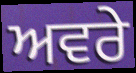
ਅਵਰੇ